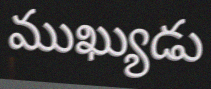
ముఖ్యుడు